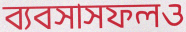
ব্যবসাসফলও